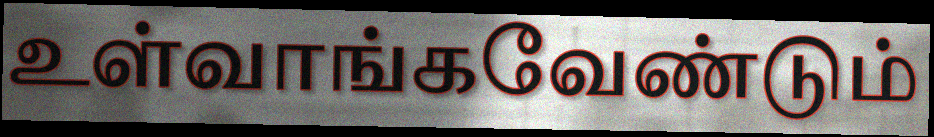
உள்வாங்கவேண்டும்